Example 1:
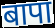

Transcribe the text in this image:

बापा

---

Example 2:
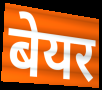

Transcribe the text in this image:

बेयर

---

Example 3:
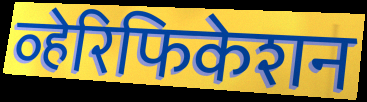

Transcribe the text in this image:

व्हेरिफिकेशन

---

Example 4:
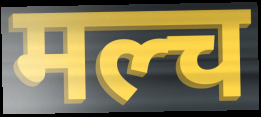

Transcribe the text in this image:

मल्च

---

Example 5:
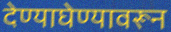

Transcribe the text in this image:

देण्याघेण्यावरून